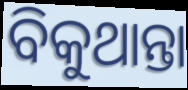
ବିକୁଥାନ୍ତା